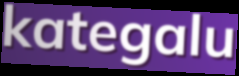
kategalu